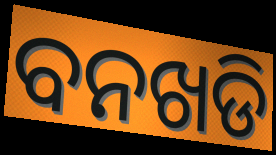
ବନଖଡି